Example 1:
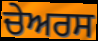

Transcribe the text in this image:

ਚੇਅਰਸ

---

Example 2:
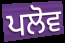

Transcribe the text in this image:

ਪਲੋਵ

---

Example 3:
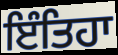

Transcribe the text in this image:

ਇੰਤਿਹਾ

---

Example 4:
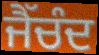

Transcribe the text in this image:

ਜੈੱਚੰਦ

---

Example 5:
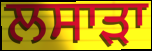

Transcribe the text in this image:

ਲਸਾੜਾ